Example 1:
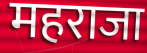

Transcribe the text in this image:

महराजा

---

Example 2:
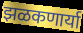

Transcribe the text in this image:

झळकणार्या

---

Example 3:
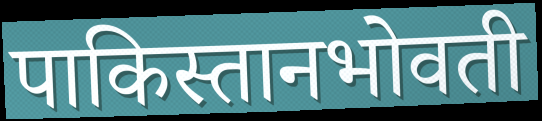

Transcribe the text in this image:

पाकिस्तानभोवती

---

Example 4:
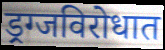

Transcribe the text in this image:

ड्रग्जविरोधात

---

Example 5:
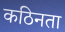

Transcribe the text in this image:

कठिनता